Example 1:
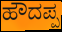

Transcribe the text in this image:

ಹೌದಪ್ಪ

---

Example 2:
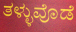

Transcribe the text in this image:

ತಳ್ಳುವೊಡೆ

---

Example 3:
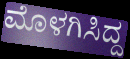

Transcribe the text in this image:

ಮೊಳಗಿಸಿದ್ದ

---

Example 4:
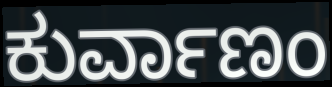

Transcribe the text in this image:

ಕುರ್ವಾಣಂ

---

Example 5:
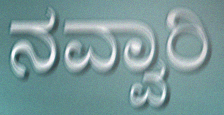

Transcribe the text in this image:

ನವ್ವಾರಿ